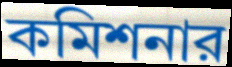
কমিশনার